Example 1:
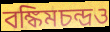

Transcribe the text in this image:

বঙ্কিমচন্দ্রও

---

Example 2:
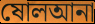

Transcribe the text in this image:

ষোলআনা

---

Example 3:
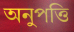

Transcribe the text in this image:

অনুপত্তি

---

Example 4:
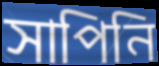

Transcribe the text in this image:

সাপিনি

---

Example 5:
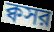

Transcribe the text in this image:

ক্বসর